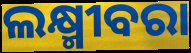
ଲକ୍ଷ୍ମୀବରା